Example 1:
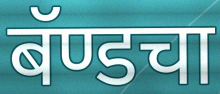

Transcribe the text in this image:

बॅण्डचा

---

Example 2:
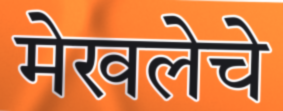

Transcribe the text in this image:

मेखलेचे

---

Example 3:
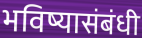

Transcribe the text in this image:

भविष्यासंबंधी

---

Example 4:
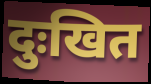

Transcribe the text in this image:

दुःखित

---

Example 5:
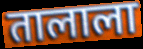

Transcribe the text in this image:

तालाला